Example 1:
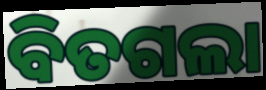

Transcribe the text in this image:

ବିତଗଲା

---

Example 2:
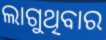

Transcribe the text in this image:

ଲାଗୁଥିବାର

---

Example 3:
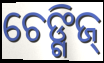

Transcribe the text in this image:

ଚେଙ୍ଗିଜ୍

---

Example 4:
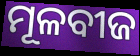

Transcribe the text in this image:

ମୂଳବୀଜ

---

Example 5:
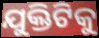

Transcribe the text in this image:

ଯୁକ୍ତିଟିକୁ